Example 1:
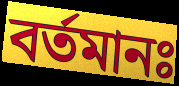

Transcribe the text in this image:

বর্তমানঃ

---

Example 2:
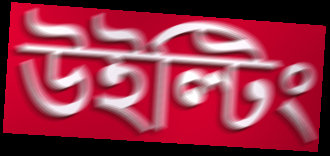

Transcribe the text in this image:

উইল্টিং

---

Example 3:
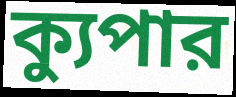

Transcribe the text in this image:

ক্যুপার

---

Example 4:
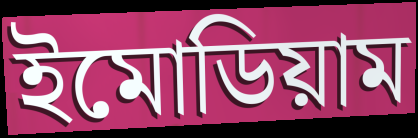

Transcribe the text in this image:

ইমোডিয়াম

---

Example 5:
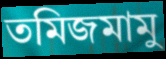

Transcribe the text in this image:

তমিজমামু